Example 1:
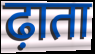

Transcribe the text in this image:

ढ़ाता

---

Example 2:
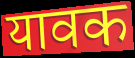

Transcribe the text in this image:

यावक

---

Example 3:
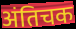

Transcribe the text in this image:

अंतिचक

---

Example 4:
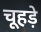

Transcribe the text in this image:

चूहड़े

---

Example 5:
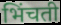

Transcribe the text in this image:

भिंचती